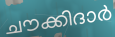
ചൗക്കിദാർ